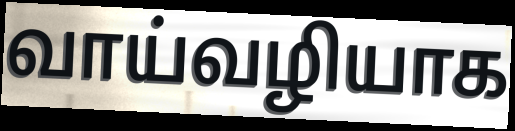
வாய்வழியாக